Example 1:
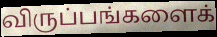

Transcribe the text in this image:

விருப்பங்களைக்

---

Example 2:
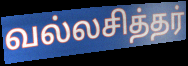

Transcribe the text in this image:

வல்லசித்தர்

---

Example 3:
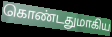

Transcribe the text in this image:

கொண்டதுமாகிய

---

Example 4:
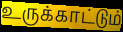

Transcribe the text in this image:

உருக்காட்டும்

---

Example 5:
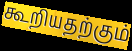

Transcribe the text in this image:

கூறியதற்கும்